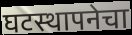
घटस्थापनेचा